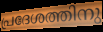
പ്രദേശത്തിനു